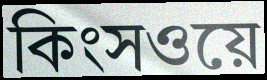
কিংসওয়ে